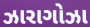
ઝારાગોઝા